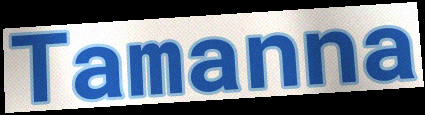
Tamanna